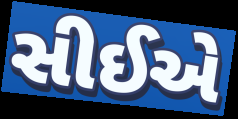
સીઈએ